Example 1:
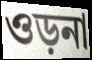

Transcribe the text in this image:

ওড়না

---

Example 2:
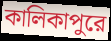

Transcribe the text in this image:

কালিকাপুরে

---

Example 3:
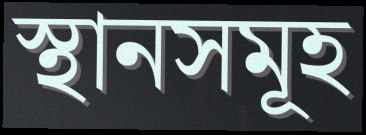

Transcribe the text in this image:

স্থানসমূহ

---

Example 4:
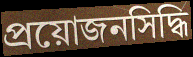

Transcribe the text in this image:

প্রয়োজনসিদ্ধি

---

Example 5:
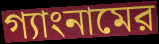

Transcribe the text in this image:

গ্যাংনামের